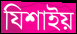
যিশাইয়